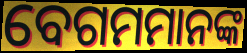
ବେଗମମାନଙ୍କ